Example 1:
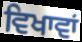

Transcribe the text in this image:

ਵਿਖਾਵਾਂ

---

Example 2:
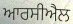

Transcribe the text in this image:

ਆਰਸੀਐਲ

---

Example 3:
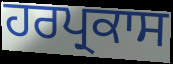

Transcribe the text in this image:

ਹਰਪ੍ਰਕਾਸ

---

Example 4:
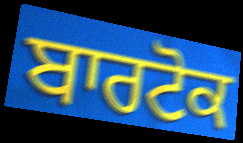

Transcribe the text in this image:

ਬਾਰਟੋਕ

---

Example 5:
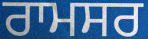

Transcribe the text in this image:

ਰਾਮਸਰ